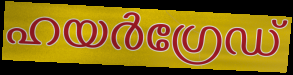
ഹയർഗ്രേഡ്